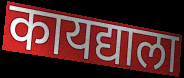
कायद्याला